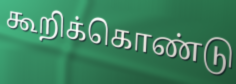
கூறிக்கொண்டு